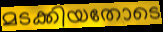
മടക്കിയതോടെ